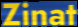
Zinat